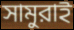
সামুরাই